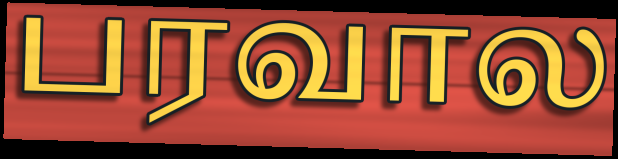
பரவால